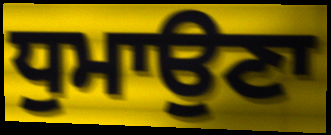
ਧੁਮਾਉਣਾ